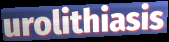
urolithiasis